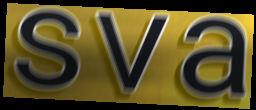
sva